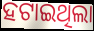
ହଟାଇଥିଲା